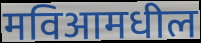
मविआमधील